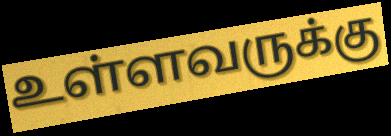
உள்ளவருக்கு